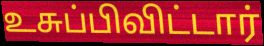
உசுப்பிவிட்டார்